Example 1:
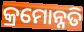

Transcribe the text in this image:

କ୍ରମୋନ୍ନତି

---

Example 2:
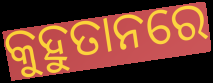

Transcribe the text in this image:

କୁହୁତାନରେ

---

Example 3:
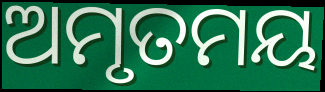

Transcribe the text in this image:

ଅମୃତମୟ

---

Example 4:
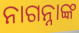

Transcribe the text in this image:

ନାଗନ୍ନାଙ୍କ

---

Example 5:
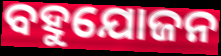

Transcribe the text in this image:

ବହୁଯୋଜନ